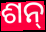
ଶନ୍